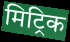
मिट्रिक